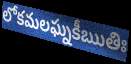
లోకమలఘ్నకీఋతిః